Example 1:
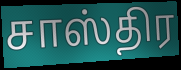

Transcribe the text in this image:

சாஸ்திர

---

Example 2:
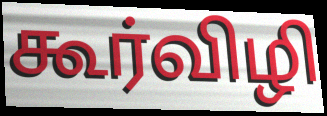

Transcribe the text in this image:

கூர்விழி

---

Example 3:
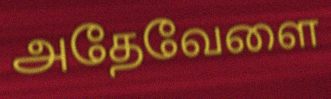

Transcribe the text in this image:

அதேவேளை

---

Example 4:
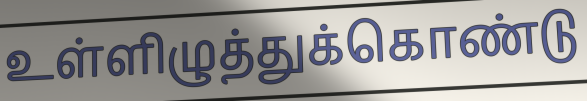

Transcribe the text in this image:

உள்ளிழுத்துக்கொண்டு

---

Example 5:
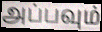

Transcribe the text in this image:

அப்பவும்